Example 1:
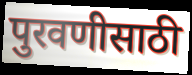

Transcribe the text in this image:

पुरवणीसाठी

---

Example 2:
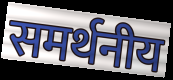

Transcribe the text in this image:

समर्थनीय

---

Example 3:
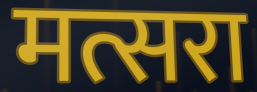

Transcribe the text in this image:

मत्सरा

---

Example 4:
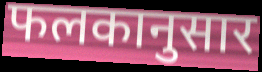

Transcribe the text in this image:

फलकानुसार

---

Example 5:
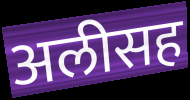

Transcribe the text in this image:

अलीसह